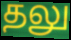
தலு